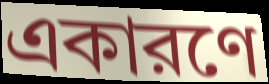
একারণে